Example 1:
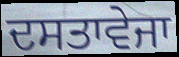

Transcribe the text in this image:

ਦਸਤਾਵੇਜਾ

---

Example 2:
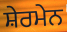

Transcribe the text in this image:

ਸ਼ੇਰਮੇਨ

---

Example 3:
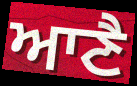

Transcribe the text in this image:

ਆਣੈ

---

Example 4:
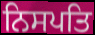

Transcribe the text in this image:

ਨਿਸਪਤਿ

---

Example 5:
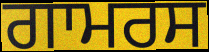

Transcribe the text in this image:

ਗਾਮਰਸ